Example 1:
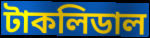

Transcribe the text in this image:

টাকলিডাল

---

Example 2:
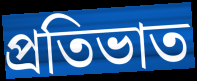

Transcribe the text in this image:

প্ৰতিভাত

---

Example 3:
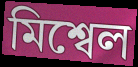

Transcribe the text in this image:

মিশ্বেল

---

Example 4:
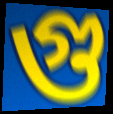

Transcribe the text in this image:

গু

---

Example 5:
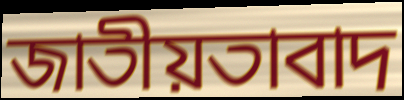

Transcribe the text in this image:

জাতীয়তাবাদ